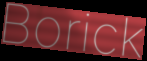
Borick